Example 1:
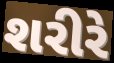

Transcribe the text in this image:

શરીરે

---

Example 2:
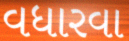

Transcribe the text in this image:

વધારવા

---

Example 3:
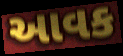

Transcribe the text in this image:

આવક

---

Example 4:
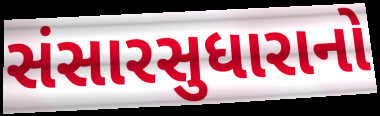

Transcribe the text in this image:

સંસારસુધારાનો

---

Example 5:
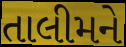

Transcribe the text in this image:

તાલીમને